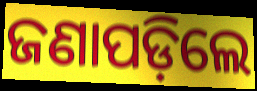
ଜଣାପଡ଼ିଲେ